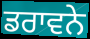
ਡਰਾਵਨੇ